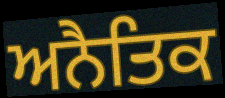
ਅਨੈਤਿਕ